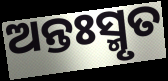
ଅନ୍ତଃସ୍ମୃତ